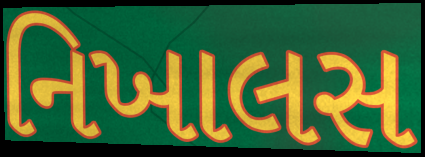
નિખાલસ